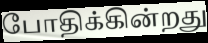
போதிக்கின்றது